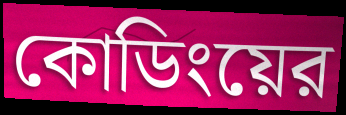
কোডিংয়ের